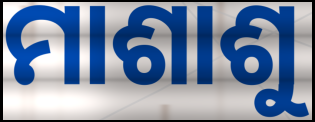
ମାଶାଶୁ